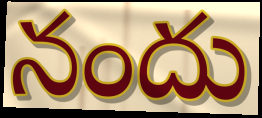
నందు